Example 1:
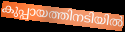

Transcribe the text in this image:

കുപ്പായത്തിനടിയിൽ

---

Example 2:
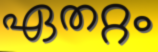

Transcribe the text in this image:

ഏതറ്റം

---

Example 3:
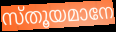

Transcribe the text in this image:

സ്തൂയമാനേ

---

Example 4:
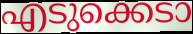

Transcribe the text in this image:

എടുക്കെടാ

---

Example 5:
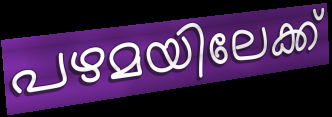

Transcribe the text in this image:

പഴമയിലേക്ക്